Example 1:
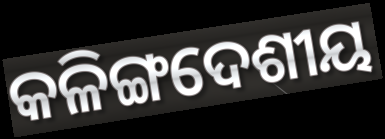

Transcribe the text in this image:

କଳିଙ୍ଗଦେଶୀୟ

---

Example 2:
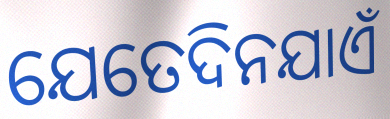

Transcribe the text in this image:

ଯେତେଦିନଯାଏଁ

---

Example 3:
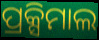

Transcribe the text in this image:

ପ୍ରକ୍ସିମାଲ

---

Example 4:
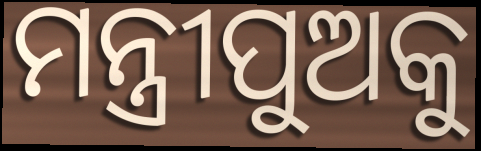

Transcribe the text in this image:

ମନ୍ତ୍ରୀପୁଅକୁ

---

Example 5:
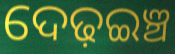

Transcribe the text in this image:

ଦେଢ଼ଇଞ୍ଚ